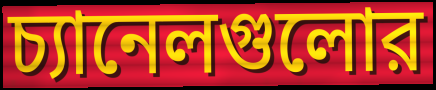
চ্যানেলগুলোর